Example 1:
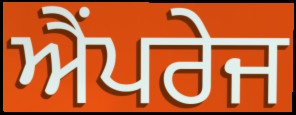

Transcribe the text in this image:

ਐਂਪਰੇਜ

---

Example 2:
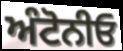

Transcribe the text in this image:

ਅੰਟੋਨੀਓ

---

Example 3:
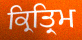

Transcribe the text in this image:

ਕ੍ਰਿਤ੍ਰਿਮ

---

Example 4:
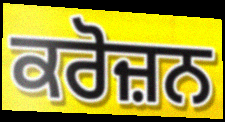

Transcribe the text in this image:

ਕਰੋਜ਼ਨ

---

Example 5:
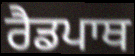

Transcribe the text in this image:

ਰੈਡਪਾਥ